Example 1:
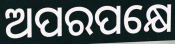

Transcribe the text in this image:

ଅପରପକ୍ଷେ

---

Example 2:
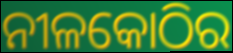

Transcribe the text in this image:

ନୀଳକୋଠିର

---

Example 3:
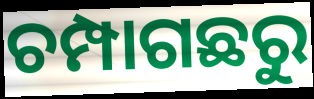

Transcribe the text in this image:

ଚମ୍ପାଗଛରୁ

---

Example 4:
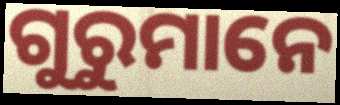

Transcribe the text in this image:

ଗୁରୁମାନେ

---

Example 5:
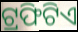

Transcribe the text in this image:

ଟ୍ରଫିଟିଏ